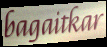
bagaitkar